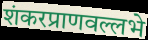
शंकरप्राणवल्लभे